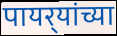
पायर्‍यांच्या